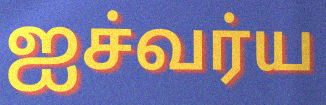
ஐச்வர்ய